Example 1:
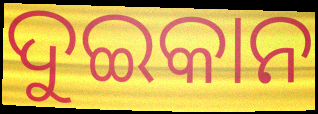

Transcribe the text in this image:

ଦୁଇକାନ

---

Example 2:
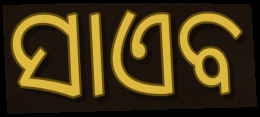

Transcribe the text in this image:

ସାଏବ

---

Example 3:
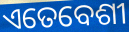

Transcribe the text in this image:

ଏତେବେଶୀ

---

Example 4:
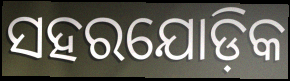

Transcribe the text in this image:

ସହରଯୋଡ଼ିକ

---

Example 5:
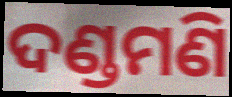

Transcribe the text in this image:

ଦଣ୍ଡମଣି